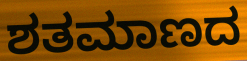
ಶತಮಾಣದ